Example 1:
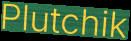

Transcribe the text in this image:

Plutchik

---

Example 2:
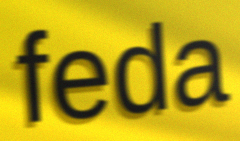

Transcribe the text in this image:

feda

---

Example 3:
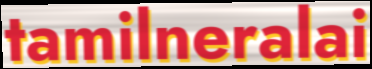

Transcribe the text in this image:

tamilneralai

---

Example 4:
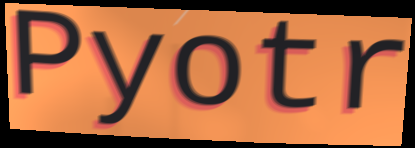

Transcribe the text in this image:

Pyotr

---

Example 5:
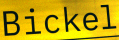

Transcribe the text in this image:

Bickel